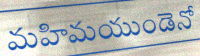
మహిమయుండెనో